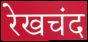
रेखचंद